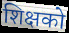
शिक्षको